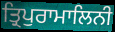
ਤ੍ਰਿਪੁਰਾਮਾਲਿਨੀ